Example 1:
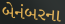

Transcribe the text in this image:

બેનંબરના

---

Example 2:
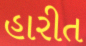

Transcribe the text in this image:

હારીત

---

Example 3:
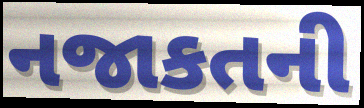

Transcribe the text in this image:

નજાકતની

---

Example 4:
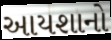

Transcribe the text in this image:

આયશાનો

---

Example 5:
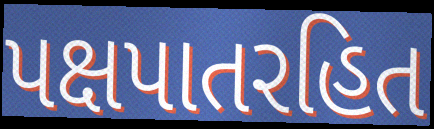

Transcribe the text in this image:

પક્ષપાતરહિત